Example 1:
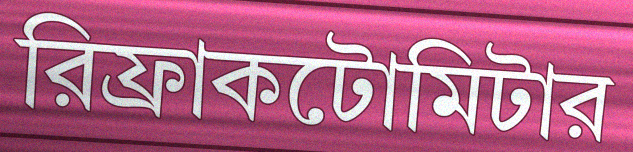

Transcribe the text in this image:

রিফ্রাকটোমিটার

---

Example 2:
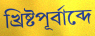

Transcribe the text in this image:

খ্রিষ্টপূর্বাব্দে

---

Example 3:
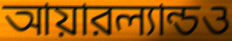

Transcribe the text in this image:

আয়ারল্যান্ডও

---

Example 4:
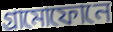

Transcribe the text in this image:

গ্রামোফোনে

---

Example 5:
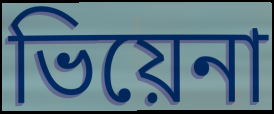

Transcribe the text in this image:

ভিয়েনা